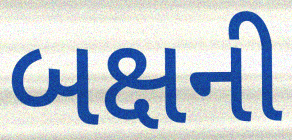
બક્ષની